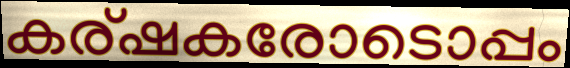
കര്ഷകരോടൊപ്പം